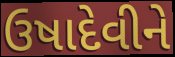
ઉષાદેવીને